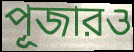
পূজারও